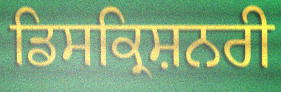
ਡਿਸਕ੍ਰਿਸ਼ਨਰੀ